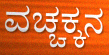
ವಚ್ಚಕ್ಕನ